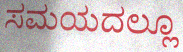
ಸಮಯದಲ್ಲೂ